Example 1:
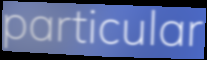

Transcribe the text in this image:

particular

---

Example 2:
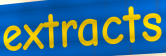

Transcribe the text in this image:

extracts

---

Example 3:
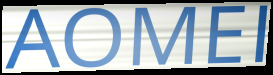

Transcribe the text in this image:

AOMEI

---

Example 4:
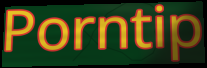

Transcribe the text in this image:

Porntip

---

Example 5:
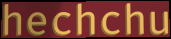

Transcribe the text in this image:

hechchu